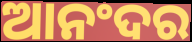
ଆନଂଦର